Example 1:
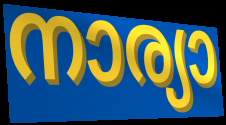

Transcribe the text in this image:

നാര്യാ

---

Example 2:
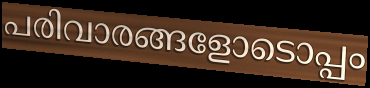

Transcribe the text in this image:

പരിവാരങ്ങളോടൊപ്പം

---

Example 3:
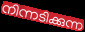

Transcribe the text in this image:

നിന്നടിക്കുന്ന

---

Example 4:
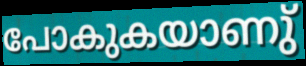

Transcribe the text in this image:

പോകുകയാണു്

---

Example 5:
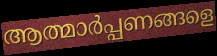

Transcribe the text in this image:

ആത്മാർപ്പണങ്ങളെ